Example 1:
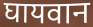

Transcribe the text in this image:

घायवान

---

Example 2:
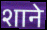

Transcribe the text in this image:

शाने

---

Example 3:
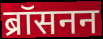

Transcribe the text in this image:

ब्रॉसनन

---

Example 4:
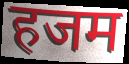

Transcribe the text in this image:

हजम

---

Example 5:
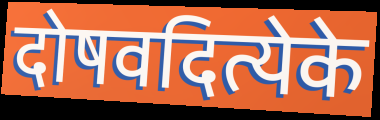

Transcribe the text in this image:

दोषवदित्येके